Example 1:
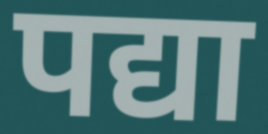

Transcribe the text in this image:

पद्या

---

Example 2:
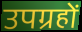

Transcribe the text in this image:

उपग्रहों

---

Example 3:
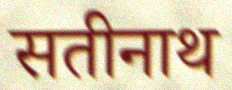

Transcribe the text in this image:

सतीनाथ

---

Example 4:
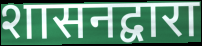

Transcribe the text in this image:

शासनद्वारा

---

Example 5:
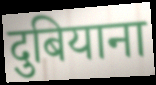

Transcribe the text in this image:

दुबियाना